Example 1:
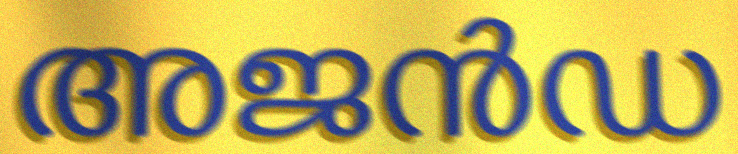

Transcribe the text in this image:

അജൻഡ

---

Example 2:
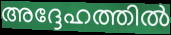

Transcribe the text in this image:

അദ്ദേഹത്തിൽ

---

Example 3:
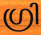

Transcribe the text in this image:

ഗ്രി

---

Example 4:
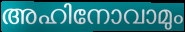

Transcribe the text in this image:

അഹിനോവാമും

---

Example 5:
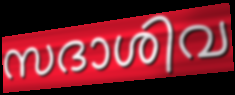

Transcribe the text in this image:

സദാശിവ